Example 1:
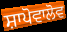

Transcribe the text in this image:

ਸ਼ਾਪੋਵਾਲੋਵ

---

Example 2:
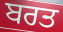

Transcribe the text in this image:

ਬਰਤ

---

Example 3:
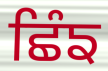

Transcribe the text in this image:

ਛਿੰਙ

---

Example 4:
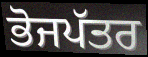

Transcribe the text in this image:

ਭੋਜਪੱਤਰ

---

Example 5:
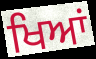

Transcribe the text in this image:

ਖਿਆਂ